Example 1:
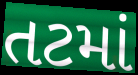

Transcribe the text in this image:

તટમાં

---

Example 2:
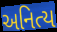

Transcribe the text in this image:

અનિત્ય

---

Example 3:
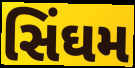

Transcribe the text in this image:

સિંઘમ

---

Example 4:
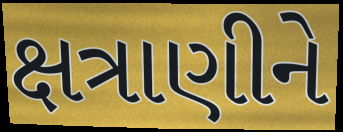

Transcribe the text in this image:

ક્ષત્રાણીને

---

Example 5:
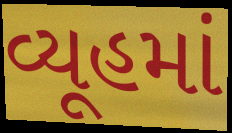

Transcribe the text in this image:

વ્યૂહમાં